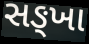
સઙ્ખા